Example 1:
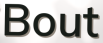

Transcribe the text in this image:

Bout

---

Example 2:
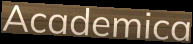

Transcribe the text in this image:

Academica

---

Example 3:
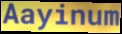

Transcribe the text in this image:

Aayinum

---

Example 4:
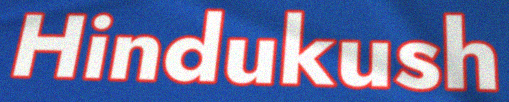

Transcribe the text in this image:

Hindukush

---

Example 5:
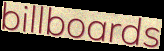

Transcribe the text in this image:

billboards